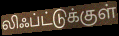
லிஃப்ட்டுக்குள்